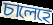
চালেহে